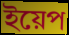
ইয়েপ